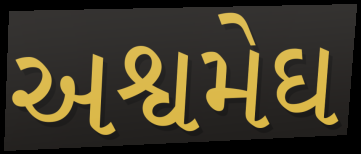
અશ્વમેઘ